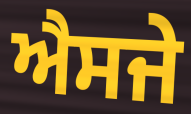
ਐਸਜੇ